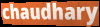
chaudhary